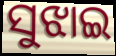
ସୁଝାଇ